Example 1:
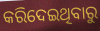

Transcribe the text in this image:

କରିଦେଇଥିବାରୁ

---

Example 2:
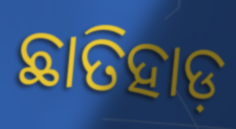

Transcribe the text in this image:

ଛାତିହାଡ଼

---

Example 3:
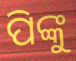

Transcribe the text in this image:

ପିଙ୍କୁ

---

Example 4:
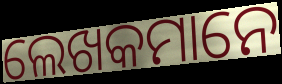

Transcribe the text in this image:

ଲେଖକମାନେ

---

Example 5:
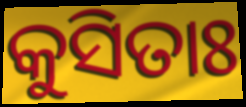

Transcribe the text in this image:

କୁସିତାଃ